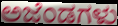
ಅಜೆಂಡಗಳು